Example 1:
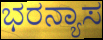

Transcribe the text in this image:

ಭರನ್ಯಾಸ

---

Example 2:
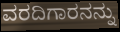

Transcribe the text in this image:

ವರದಿಗಾರನನ್ನು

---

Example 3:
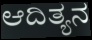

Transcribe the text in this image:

ಆದಿತ್ಯನ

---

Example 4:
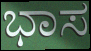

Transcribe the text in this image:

ಭಾಸ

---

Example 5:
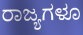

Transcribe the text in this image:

ರಾಜ್ಯಗಳೂ